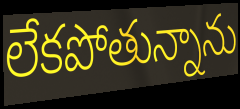
లేకపోతున్నాను